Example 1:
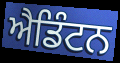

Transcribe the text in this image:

ਐਡਿੰਟਨ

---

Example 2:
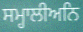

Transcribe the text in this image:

ਸਮ੍ਹਾਲੀਅਨਿ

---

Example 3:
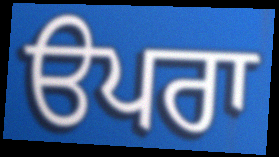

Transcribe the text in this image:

ੳਪਰਾ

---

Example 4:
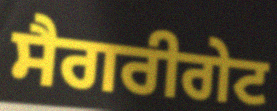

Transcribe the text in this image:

ਸੈਗਰੀਗੇਟ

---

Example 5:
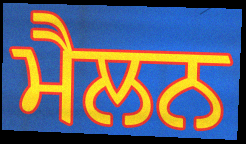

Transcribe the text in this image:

ਮੈਲਨ